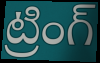
ట్రింగ్